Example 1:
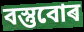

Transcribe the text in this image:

বস্তুবোৰ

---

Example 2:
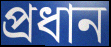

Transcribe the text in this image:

প্ৰধান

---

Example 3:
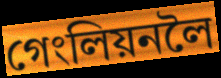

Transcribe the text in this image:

গেংলিয়নলৈ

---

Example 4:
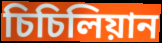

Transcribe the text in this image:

চিচিলিয়ান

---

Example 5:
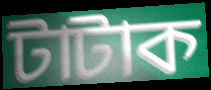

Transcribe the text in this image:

টাটাক